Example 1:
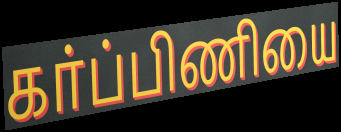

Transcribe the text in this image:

கர்ப்பிணியை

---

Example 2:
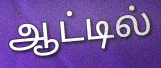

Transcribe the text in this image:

ஆட்டில்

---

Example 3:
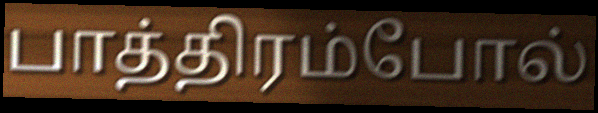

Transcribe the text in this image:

பாத்திரம்போல்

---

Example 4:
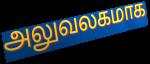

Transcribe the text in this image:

அலுவலகமாக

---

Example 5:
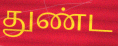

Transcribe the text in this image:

துண்ட